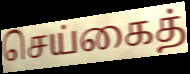
செய்கைத்